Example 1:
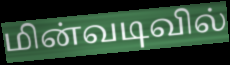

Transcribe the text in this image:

மின்வடிவில்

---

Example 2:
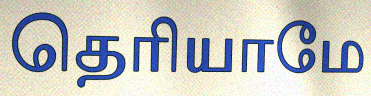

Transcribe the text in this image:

தெரியாமே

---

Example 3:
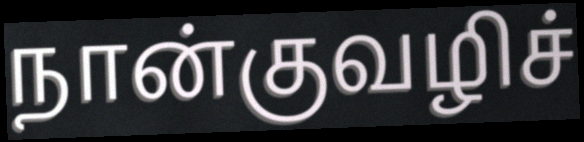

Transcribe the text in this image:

நான்குவழிச்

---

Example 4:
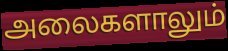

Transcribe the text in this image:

அலைகளாலும்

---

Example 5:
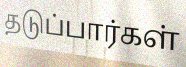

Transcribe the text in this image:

தடுப்பார்கள்